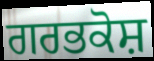
ਗਰਭਕੋਸ਼